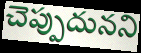
చెప్పుదునని